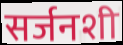
सर्जनशी